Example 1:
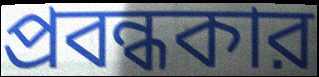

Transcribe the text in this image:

প্রবন্ধকার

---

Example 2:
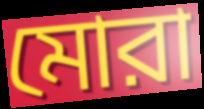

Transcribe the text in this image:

মোরা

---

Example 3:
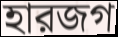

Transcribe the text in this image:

হারজগ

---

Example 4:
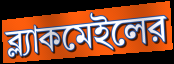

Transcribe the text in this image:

ব্ল্যাকমেইলের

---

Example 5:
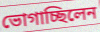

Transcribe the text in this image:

ভোগাচ্ছিলেন